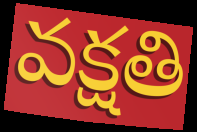
వక్షతి